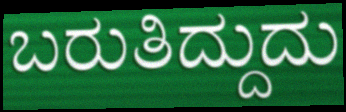
ಬರುತಿದ್ದುದು